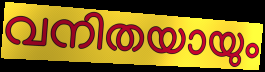
വനിതയായും